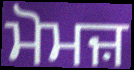
ਮੋਮਜ਼